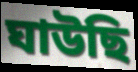
ঘাউছি